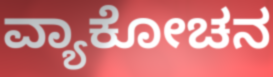
ವ್ಯಾಕೋಚನ